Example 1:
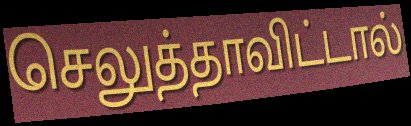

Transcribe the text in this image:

செலுத்தாவிட்டால்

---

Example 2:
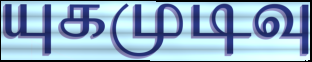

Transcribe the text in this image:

யுகமுடிவு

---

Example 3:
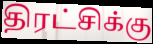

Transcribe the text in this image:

திரட்சிக்கு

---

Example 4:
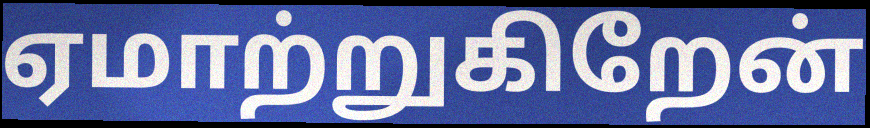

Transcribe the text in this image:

ஏமாற்றுகிறேன்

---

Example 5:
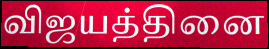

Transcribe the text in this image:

விஜயத்தினை